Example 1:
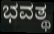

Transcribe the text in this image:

ಭವತ್ಥ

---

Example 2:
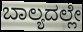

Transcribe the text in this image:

ಬಾಲ್ಯದಲ್ಲೇ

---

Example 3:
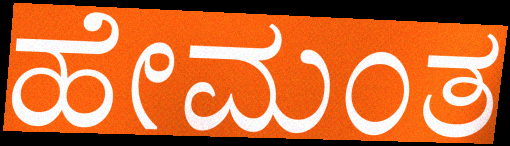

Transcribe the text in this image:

ಹೇಮಂತ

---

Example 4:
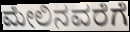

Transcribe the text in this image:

ಮೇಲಿನವರೆಗೆ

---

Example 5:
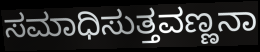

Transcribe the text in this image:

ಸಮಾಧಿಸುತ್ತವಣ್ಣನಾ